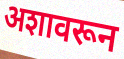
अशावरून